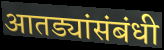
आतड्यांसंबंधी